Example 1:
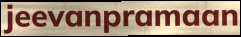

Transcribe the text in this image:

jeevanpramaan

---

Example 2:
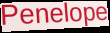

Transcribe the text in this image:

Penelope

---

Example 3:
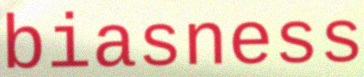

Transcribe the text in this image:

biasness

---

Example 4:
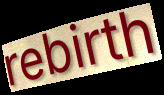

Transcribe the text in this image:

rebirth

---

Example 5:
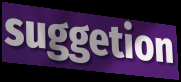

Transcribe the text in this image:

suggetion